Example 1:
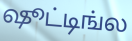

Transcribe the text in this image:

ஷூட்டிங்ல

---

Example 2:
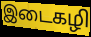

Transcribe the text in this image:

இடைகழி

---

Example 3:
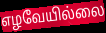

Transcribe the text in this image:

எழவேயில்லை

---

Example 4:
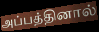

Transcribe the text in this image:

அப்பத்தினால்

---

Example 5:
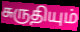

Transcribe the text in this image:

சுருதியும்